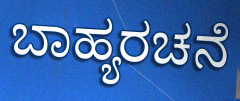
ಬಾಹ್ಯರಚನೆ